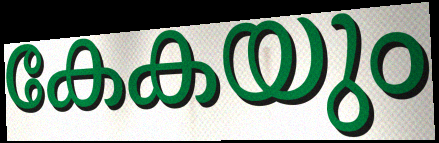
കേകയും